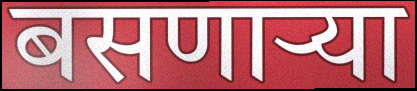
बसणार्‍या